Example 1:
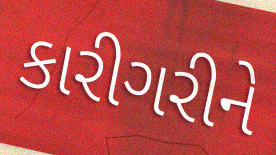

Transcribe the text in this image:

કારીગરીને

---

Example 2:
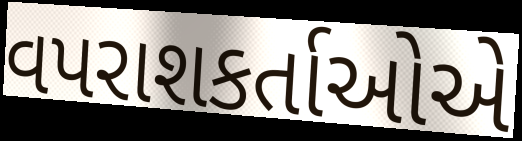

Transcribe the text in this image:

વપરાશકર્તાઓએ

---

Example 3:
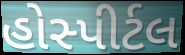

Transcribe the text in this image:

હોસ્પીર્ટલ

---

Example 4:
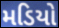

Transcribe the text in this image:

મડિયો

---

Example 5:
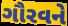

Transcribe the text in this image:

ગૌરવને